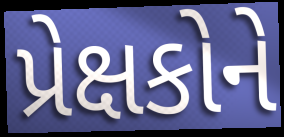
પ્રેક્ષકોને